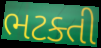
ભટક્તી